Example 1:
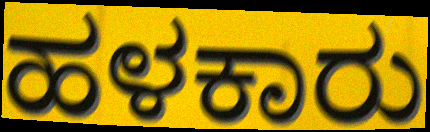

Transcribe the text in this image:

ಹಳಕಾರು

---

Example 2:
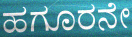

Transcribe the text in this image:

ಹಗೂರನೇ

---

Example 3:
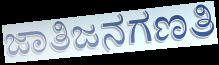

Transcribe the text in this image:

ಜಾತಿಜನಗಣತಿ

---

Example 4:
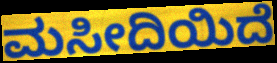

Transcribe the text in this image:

ಮಸೀದಿಯಿದೆ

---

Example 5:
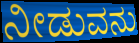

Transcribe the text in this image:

ನೀಡುವನು